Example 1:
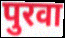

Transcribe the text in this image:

पुरवा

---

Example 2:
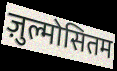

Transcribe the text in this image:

ज़ुल्मोसितम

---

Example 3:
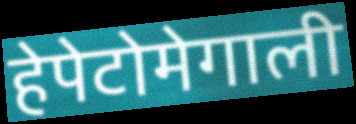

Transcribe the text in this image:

हेपेटोमेगाली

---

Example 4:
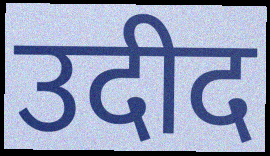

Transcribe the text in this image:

उदीद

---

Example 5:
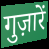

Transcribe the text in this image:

गुज़ारें